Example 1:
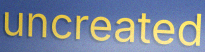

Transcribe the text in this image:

uncreated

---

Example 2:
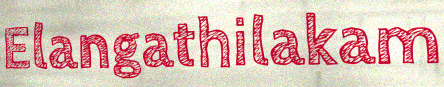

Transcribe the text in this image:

Elangathilakam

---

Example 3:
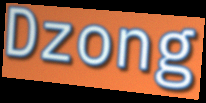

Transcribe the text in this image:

Dzong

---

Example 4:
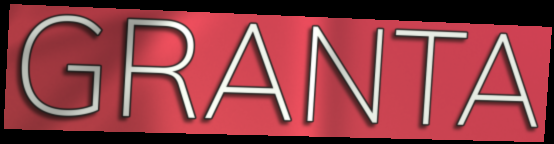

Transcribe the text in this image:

GRANTA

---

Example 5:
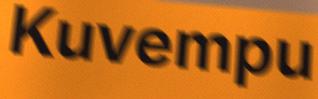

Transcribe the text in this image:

Kuvempu